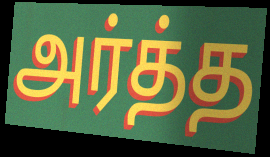
அர்த்த